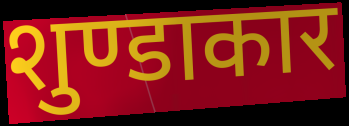
शुण्डाकार